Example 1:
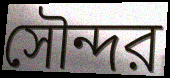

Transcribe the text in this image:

সৌন্দর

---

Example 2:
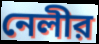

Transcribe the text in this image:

নেলীর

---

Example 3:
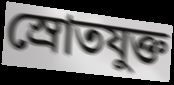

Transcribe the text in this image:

স্রোতযুক্ত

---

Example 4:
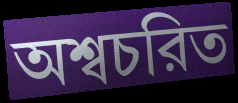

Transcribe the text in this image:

অশ্বচরিত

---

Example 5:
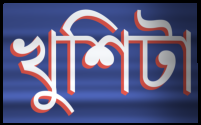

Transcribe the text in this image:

খুশিটা